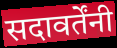
सदावर्तेंनी